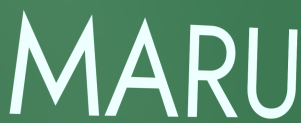
MARU